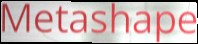
Metashape